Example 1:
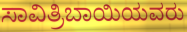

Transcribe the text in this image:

ಸಾವಿತ್ರಿಬಾಯಿಯವರು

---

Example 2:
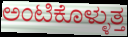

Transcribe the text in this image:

ಅಂಟಿಕೊಳ್ಳುತ್ತ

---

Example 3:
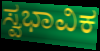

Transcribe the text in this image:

ಸ್ವಭಾವಿಕ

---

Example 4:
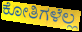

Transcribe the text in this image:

ಕೋತಿಗಳೆಲ್ಲ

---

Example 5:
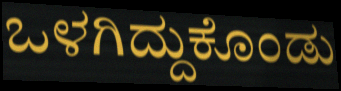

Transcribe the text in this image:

ಒಳಗಿದ್ದುಕೊಂಡು